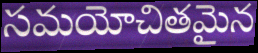
సమయోచితమైన